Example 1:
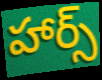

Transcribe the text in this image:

హార్స్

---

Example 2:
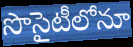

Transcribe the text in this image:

సొసైటీలోనూ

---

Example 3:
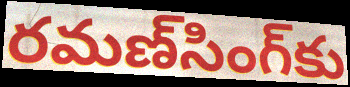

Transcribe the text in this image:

రమణ్‌సింగ్‌కు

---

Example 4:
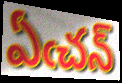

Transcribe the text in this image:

ఏఁచన్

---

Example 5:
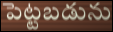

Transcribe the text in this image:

పెట్టబడును